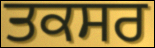
ਤਕਸਰ